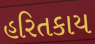
હરિતકાય